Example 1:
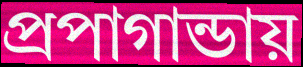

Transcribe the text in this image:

প্রপাগান্ডায়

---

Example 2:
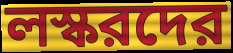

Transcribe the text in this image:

লস্করদের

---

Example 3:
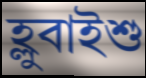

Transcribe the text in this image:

হ্লুবাইশু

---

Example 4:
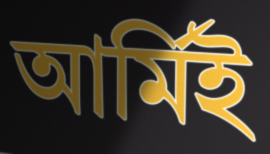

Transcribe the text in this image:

আর্মিই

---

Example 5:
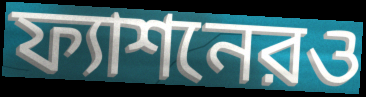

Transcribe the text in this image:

ফ্যাশনেরও